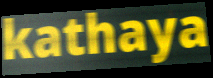
kathaya